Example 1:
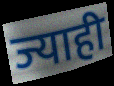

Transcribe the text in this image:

ज्याही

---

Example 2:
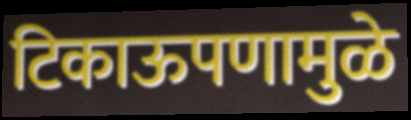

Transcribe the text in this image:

टिकाऊपणामुळे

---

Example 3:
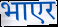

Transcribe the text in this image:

भाएर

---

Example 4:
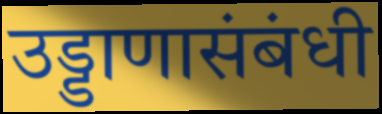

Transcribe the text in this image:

उड्डाणासंबंधी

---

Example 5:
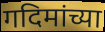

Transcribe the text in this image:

गदिमांच्या